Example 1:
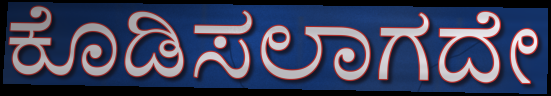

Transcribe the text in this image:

ಕೊಡಿಸಲಾಗದೇ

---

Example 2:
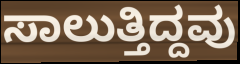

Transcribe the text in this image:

ಸಾಲುತ್ತಿದ್ದವು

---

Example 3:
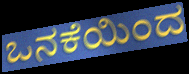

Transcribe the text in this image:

ಒನಕೆಯಿಂದ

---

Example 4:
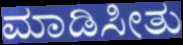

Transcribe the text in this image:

ಮಾಡಿಸೀತು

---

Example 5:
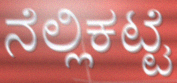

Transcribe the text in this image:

ನೆಲ್ಲಿಕಟ್ಟೆ